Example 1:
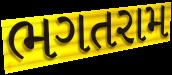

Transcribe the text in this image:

ભગતરામ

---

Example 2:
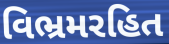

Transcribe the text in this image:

વિભ્રમરહિત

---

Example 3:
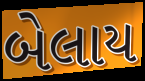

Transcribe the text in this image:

બેલાય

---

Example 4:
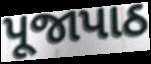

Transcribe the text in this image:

પૂજાપાઠ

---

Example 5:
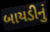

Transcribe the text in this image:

બાયડીનું